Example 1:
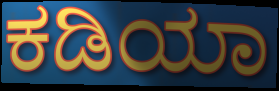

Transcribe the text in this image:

ಕಡಿಯಾ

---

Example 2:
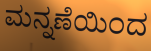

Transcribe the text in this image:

ಮನ್ನಣೆಯಿಂದ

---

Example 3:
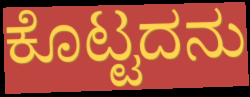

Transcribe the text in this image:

ಕೊಟ್ಟದನು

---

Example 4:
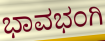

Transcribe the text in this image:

ಭಾವಭಂಗಿ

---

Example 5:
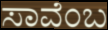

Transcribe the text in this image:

ಸಾವೆಂಬ